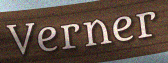
Verner